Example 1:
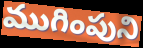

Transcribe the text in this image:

ముగింపుని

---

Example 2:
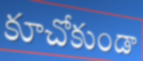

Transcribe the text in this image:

కూచోకుండా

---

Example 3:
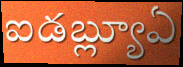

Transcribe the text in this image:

ఐడబ్ల్యూఏ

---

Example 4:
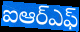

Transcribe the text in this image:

ఐఆర్ఎఫ్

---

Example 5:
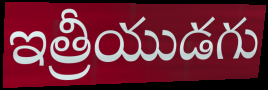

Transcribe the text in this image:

ఇత్రీయుడగు